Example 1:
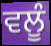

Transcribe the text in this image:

ਵਲੂੰ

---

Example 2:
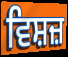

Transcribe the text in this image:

ਵਿਸ਼ਜ਼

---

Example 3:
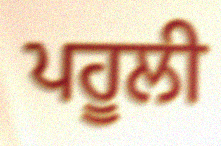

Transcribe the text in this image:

ਪਹੂਲੀ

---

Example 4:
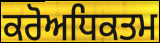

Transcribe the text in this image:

ਕਰੋਅਧਿਕਤਮ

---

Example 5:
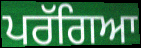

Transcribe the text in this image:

ਪਰੱਗਿਆ